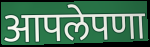
आपलेपणा